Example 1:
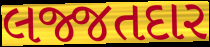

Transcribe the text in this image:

લજ્જતદાર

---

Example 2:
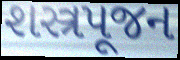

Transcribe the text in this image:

શસ્ત્રપૂજન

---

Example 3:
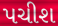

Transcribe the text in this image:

પચીશ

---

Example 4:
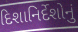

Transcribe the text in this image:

દિશાનિર્દેશોનું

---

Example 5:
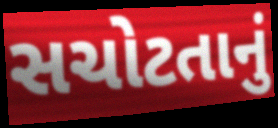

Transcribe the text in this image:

સચોટતાનું